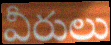
వీరులు